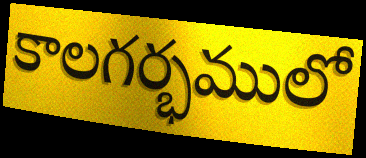
కాలగర్భములో